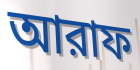
আরাফ